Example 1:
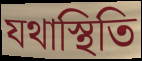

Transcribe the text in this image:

যথাস্থিতি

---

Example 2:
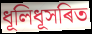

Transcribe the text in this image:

ধূলিধূসৰিত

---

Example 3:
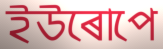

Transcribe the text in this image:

ইউৰোপে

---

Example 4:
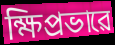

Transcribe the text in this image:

ক্ষিপ্ৰভাৱে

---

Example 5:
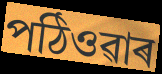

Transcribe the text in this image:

পঠিওৱাৰ